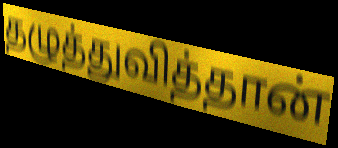
தழுத்துவித்தான்